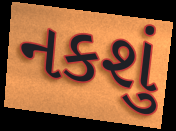
નકશું